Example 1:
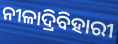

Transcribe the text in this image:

ନୀଳାଦ୍ରିବିହାରୀ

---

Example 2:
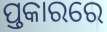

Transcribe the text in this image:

ପ୍ତକାରରେ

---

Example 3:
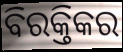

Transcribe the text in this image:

ବିରକ୍ତିକର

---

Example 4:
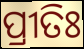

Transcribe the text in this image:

ପ୍ରୀତିଃ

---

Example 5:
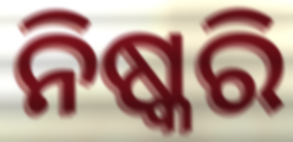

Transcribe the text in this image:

ନିଷ୍କରି